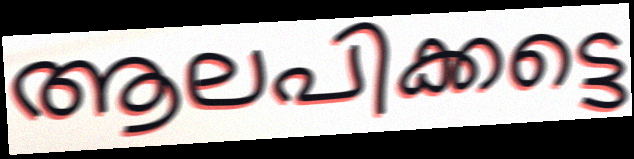
ആലപിക്കട്ടെ